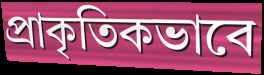
প্রাকৃতিকভাবে